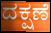
ದಕ್ಷಣೆ